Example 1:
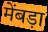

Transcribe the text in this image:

मेंबड़ा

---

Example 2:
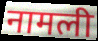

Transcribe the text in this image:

नामली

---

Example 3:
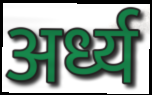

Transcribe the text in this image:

अर्ध्य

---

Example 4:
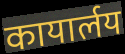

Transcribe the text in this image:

कायार्लय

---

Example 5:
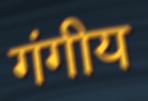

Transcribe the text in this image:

गंगीय